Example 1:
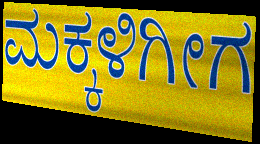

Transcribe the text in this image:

ಮಕ್ಕಳಿಗೀಗ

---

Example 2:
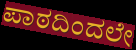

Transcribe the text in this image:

ಪಾಠದಿಂದಲೇ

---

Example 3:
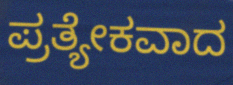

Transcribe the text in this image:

ಪ್ರತ್ಯೇಕವಾದ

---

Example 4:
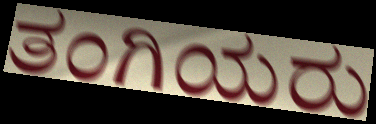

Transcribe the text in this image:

ತಂಗಿಯರು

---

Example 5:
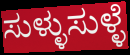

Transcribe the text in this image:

ಸುಳ್ಳುಸುಳ್ಳೆ